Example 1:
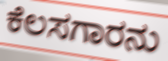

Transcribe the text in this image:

ಕೆಲಸಗಾರನು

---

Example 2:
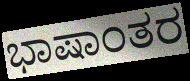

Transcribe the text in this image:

ಭಾಷಾಂತರ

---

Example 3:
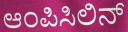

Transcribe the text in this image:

ಆಂಪಿಸಿಲಿನ್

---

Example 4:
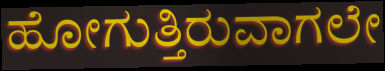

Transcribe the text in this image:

ಹೋಗುತ್ತಿರುವಾಗಲೇ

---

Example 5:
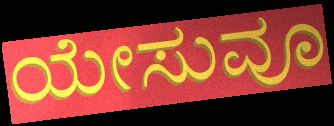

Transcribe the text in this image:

ಯೇಸುವೂ